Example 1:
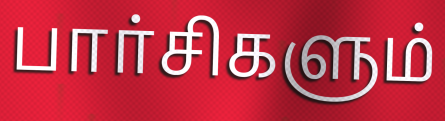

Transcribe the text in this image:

பார்சிகளும்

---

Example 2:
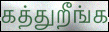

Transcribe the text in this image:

கத்துறீங்க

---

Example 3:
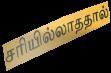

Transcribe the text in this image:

சரியில்லாததால்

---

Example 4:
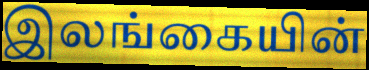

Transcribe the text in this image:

இலங்கையின்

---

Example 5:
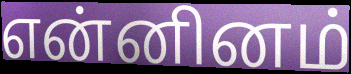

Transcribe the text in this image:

என்னினம்